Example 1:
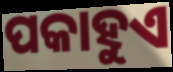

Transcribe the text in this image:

ପକାହୁଏ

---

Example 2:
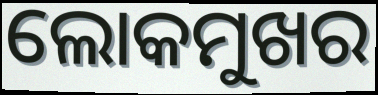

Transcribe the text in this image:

ଲୋକମୁଖର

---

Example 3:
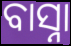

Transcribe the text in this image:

ବାସ୍ନା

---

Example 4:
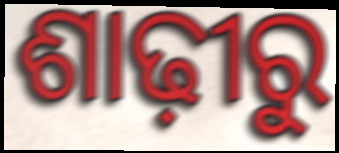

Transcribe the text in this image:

ଶାଢ଼ୀରୁ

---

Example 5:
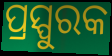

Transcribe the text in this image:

ପ୍ରସ୍ପୁରକ